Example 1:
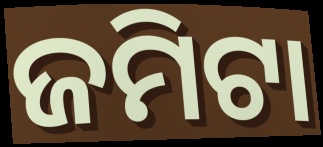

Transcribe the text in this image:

ଜମିଟା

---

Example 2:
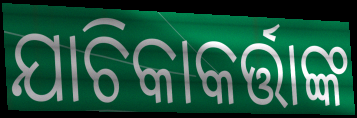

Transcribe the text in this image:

ଯାଚିକାକର୍ତ୍ତାଙ୍କ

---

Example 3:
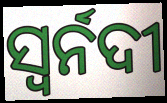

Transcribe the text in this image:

ସ୍ୱର୍ନଦୀ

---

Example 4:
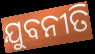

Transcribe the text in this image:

ଯୁବନୀତି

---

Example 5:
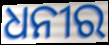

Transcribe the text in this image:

ଧନୀର